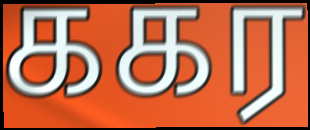
ககர